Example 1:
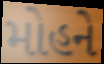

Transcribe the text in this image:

મોહને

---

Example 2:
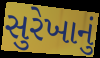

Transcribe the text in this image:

સુરેખાનું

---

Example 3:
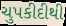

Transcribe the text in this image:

ચુપકીદીથી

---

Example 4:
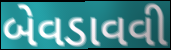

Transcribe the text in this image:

બેવડાવવી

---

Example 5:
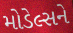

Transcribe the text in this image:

મોડેલ્સને